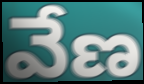
వేణ